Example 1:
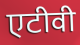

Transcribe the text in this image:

एटीवी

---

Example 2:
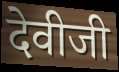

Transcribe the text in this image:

देवीजी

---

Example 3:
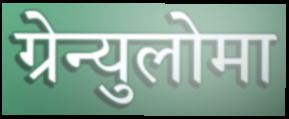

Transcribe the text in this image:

ग्रेन्युलोमा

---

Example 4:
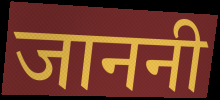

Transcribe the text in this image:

जाननी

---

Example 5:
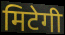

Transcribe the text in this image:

मिटेगी